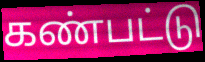
கண்பட்டு